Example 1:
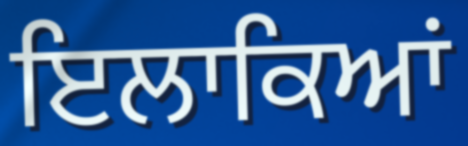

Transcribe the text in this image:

ਇਲਾਕਿਆਂ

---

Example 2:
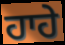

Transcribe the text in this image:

ਹਾਹੇ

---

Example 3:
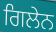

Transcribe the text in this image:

ਗਿਲੇਨ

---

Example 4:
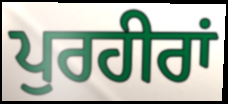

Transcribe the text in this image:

ਪੁਰਹੀਰਾਂ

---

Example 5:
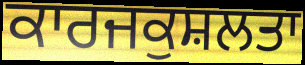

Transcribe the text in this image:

ਕਾਰਜਕੁਸ਼ਲਤਾ